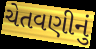
ચેતવણીનું